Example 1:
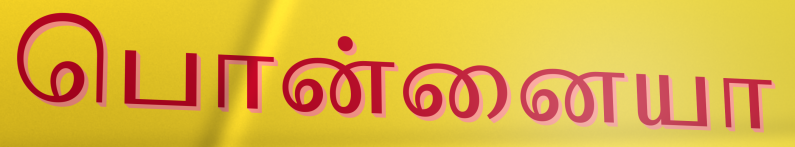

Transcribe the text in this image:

பொன்னையா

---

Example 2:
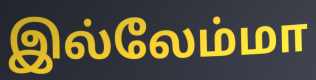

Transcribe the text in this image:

இல்லேம்மா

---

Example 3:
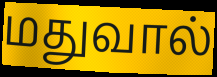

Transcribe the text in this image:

மதுவால்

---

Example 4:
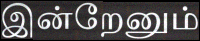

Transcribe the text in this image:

இன்றேனும்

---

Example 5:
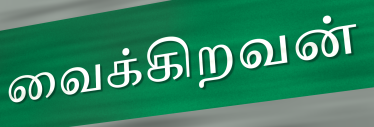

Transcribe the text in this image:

வைக்கிறவன்